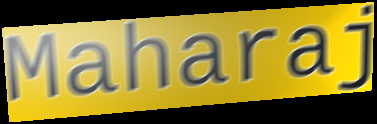
Maharaj